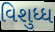
વિશુધ્ધ